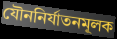
যৌননির্যাতনমূলক